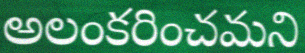
అలంకరించమని